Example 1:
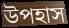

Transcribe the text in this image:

উপহাস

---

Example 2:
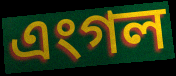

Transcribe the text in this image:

এংগল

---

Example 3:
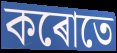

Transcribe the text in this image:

কৰোতে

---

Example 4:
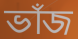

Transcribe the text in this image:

ভাঁজ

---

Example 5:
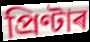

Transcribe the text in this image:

প্ৰিণ্টাৰ